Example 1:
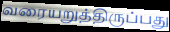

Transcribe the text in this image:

வரையறுத்திருப்பது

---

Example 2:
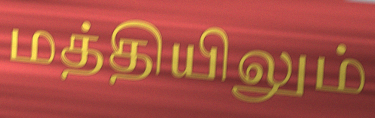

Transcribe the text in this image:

மத்தியிலும்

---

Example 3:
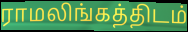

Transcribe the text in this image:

ராமலிங்கத்திடம்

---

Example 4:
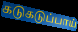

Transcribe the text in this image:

கடுகடுப்பாய்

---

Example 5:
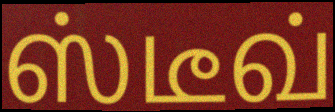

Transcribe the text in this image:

ஸ்டீவ்